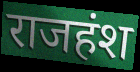
राजहंश